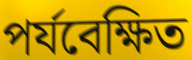
পৰ্যবেক্ষিত